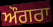
ਔਗਰਾ